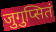
जुगुप्सितं